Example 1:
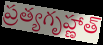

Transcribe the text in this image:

ప్రత్యగృహ్ణాత్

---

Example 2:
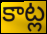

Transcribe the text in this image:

కాట్ల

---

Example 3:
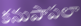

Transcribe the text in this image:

కనుపాపలా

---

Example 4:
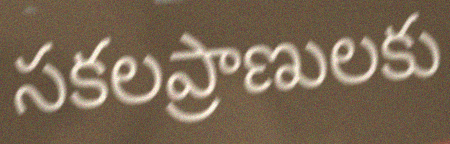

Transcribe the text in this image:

సకలప్రాణులకు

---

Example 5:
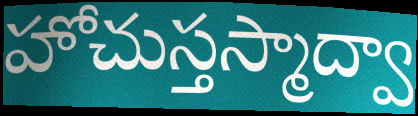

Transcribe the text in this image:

హోచుస్తస్మాద్వా